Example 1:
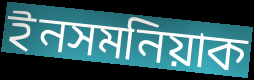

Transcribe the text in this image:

ইনসমনিয়াক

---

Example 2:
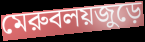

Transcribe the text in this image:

মেরুবলয়জুড়ে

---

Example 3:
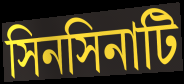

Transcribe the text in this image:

সিনসিনাটি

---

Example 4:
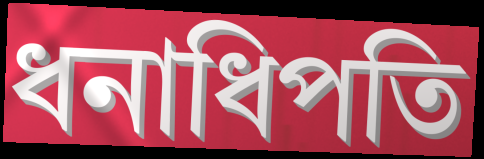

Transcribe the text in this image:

ধনাধিপতি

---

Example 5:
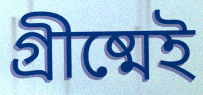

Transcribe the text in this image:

গ্রীষ্মেই